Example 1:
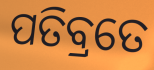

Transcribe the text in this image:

ପତିବ୍ରତେ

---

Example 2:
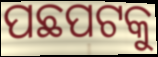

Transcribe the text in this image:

ପଛପଟକୁ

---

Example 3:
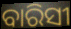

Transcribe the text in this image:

ବାରିସୀ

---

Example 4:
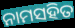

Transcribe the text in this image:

ନାମସହିତ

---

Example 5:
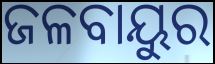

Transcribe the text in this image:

ଜଳବାୟୁର